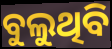
ବୁଲୁଥିବି